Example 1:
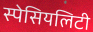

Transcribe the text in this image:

स्पेसियलिटी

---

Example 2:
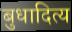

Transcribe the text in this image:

बुधादित्य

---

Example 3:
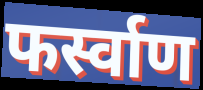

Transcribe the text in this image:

फर्स्वाण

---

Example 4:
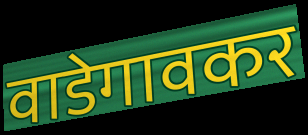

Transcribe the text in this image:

वाडेगावकर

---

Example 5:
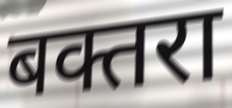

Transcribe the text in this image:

बक्तरा